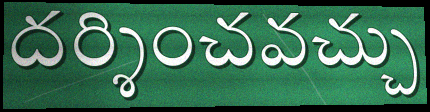
దర్శించవచ్చు